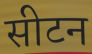
सीटन